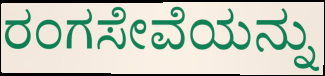
ರಂಗಸೇವೆಯನ್ನು